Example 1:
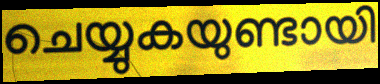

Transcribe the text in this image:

ചെയ്യുകയുണ്ടായി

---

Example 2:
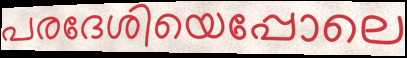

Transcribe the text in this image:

പരദേശിയെപ്പോലെ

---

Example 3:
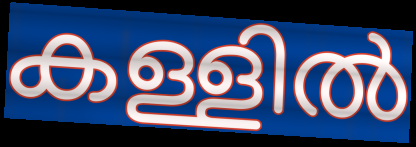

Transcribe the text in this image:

കള്ളിൽ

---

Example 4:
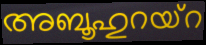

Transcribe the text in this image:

അബൂഹുറയ്റ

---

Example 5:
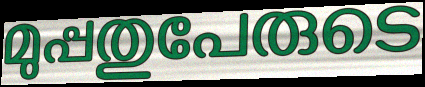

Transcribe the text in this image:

മുപ്പതുപേരുടെ